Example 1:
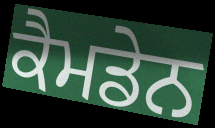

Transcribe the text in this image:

ਕੈਮਡੇਨ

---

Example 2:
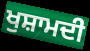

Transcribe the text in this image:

ਖੁਸ਼ਾਮਦੀ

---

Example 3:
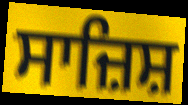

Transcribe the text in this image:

ਸਾਜ਼ਿਸ਼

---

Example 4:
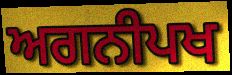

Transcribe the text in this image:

ਅਗਨੀਪਖ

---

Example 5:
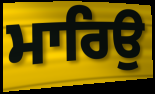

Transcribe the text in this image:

ਮਾਰਿਉ